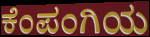
ಕೆಂಪಂಗಿಯ